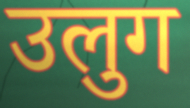
उलुग